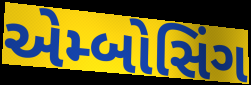
એમ્બોસિંગ